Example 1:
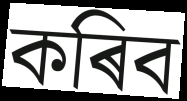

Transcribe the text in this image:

কৰিব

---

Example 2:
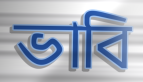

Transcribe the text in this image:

ভাবি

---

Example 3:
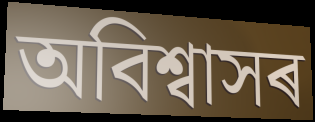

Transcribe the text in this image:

অবিশ্বাসৰ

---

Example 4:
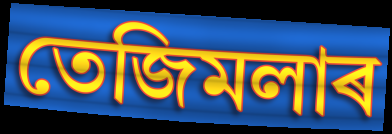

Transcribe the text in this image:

তেজিমলাৰ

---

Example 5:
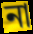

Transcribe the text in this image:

না